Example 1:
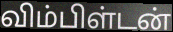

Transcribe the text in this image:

விம்பிள்டன்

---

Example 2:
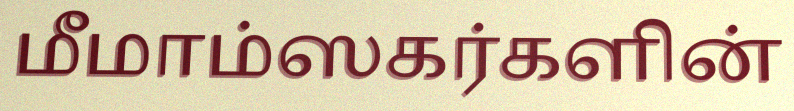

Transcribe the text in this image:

மீமாம்ஸகர்களின்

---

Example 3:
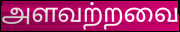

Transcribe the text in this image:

அளவற்றவை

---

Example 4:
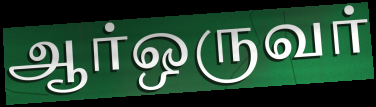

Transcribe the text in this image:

ஆர்ஒருவர்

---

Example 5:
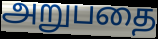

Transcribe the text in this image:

அறுபதை